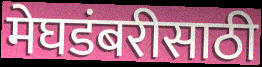
मेघडंबरीसाठी